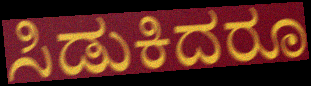
ಸಿಡುಕಿದರೂ